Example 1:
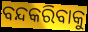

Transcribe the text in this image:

ବନ୍ଦକରିବାକୁ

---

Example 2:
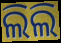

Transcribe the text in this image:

ଲିଲି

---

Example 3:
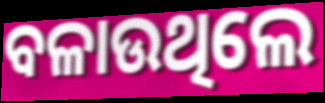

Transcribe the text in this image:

ବଳାଉଥିଲେ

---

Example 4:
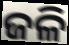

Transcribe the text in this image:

ଜଳି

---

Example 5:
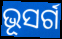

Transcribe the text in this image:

ଭୂସର୍ଗ